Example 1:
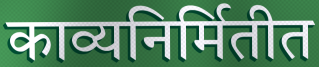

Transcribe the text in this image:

काव्यनिर्मितीत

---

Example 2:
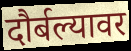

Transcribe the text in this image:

दौर्बल्यावर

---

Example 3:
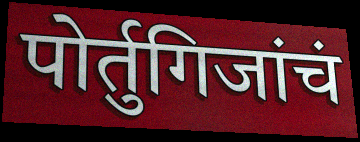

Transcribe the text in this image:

पोर्तुगिजांचं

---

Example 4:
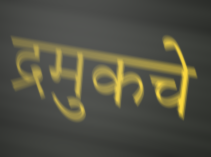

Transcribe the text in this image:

द्रमुकचे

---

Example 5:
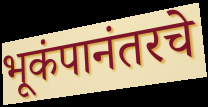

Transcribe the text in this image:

भूकंपानंतरचे